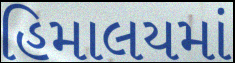
હિમાલયમાં